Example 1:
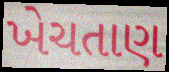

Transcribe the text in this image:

ખેચતાણ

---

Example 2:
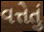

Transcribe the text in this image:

વત્તેતું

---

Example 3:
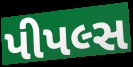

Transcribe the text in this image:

પીપલ્સ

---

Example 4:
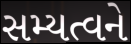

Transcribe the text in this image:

સમ્યત્વને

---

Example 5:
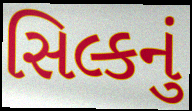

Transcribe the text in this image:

સિલ્કનું